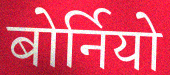
बोर्नियो